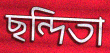
ছন্দিতা